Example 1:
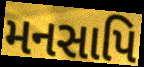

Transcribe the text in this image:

મનસાપિ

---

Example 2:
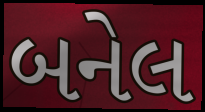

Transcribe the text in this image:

બનેલ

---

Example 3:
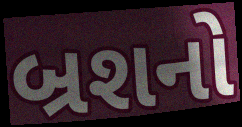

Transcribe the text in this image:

બ્રશનો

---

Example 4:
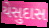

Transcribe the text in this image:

યેસુદાસ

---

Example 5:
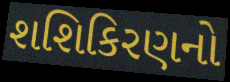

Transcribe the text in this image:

શશિકિરણનો